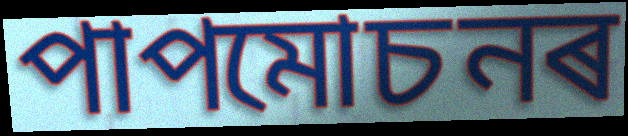
পাপমোচনৰ